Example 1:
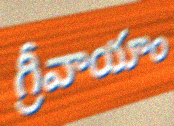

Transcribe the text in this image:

గ్రీవాయాం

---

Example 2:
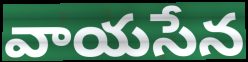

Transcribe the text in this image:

వాయసేన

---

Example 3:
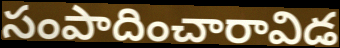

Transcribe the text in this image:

సంపాదించారావిడ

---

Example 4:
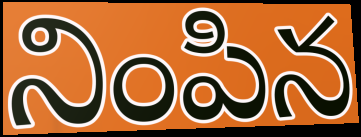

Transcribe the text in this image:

నింపిన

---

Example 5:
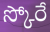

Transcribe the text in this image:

స్కోరే